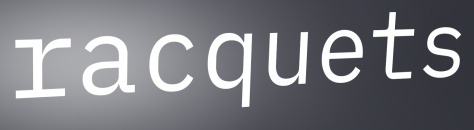
racquets